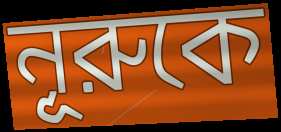
নূরুকে